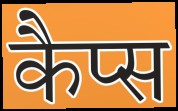
कैप्स